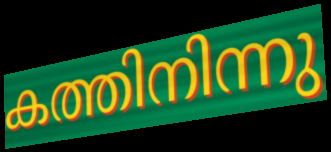
കത്തിനിന്നു